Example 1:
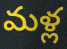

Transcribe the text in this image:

మళ్ల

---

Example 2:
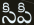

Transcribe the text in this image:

సీపీ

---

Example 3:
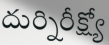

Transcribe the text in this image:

దుర్నిరీక్ష్యో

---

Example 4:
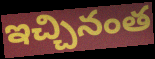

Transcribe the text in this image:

ఇచ్చినంత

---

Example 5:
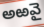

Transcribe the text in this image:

అఱవై